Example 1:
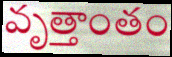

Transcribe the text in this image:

వృత్తాంతం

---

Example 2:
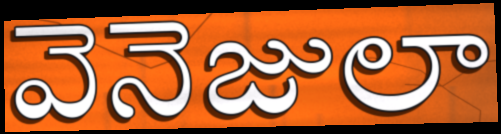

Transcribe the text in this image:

వెనెజులా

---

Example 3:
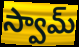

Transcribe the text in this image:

స్వామ్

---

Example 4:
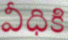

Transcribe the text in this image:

వీధికి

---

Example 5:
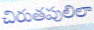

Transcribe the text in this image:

చిరుతపులిలా